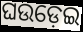
ଘଉଡ଼େଇ